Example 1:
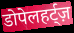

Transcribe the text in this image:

डोपेलहर्ट्ज़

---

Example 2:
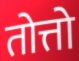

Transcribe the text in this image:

तोत्तो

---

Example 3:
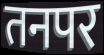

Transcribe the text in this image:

तनपर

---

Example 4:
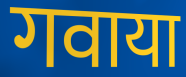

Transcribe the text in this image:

गवाया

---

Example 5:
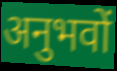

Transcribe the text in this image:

अनुभवों